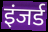
इंजर्ड